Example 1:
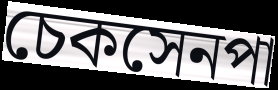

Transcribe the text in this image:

চেকসেনপা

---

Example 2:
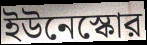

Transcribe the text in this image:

ইউনেস্কোর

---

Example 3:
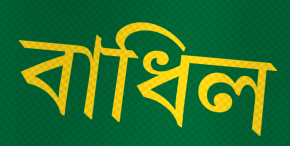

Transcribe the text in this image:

বাধিল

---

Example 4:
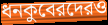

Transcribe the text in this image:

ধনকুবেরদেরও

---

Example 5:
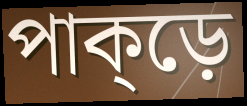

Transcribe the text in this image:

পাক্ড়ে